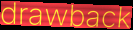
drawback